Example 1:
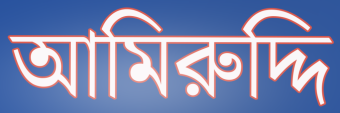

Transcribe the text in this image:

আমিরুদ্দি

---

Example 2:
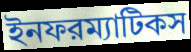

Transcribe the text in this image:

ইনফরম্যাটিকস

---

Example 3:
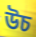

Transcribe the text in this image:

উচ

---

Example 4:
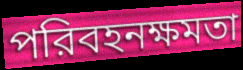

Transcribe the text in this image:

পরিবহনক্ষমতা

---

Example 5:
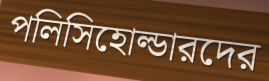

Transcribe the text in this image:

পলিসিহোল্ডারদের